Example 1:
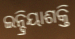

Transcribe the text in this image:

ଇନ୍ଦ୍ରିୟାଶକ୍ତି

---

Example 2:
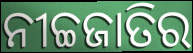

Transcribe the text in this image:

ନୀଚ୍ଚଜାତିର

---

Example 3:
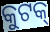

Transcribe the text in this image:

କୁଟକ୍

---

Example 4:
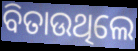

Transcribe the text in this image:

ବିତାଉଥିଲେ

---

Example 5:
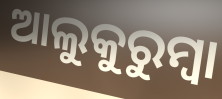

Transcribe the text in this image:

ଆଲୁକୁରୁମ୍ବା